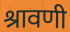
श्रावणी